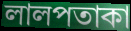
লালপতাকা